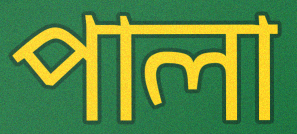
পালা